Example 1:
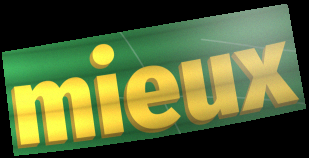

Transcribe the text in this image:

mieux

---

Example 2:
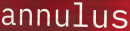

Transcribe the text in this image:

annulus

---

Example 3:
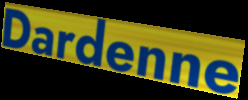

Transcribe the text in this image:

Dardenne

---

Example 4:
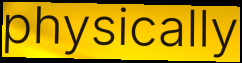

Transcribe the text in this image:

physically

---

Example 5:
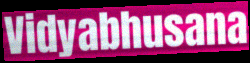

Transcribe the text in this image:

Vidyabhusana